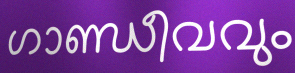
ഗാണ്ഡീവവും